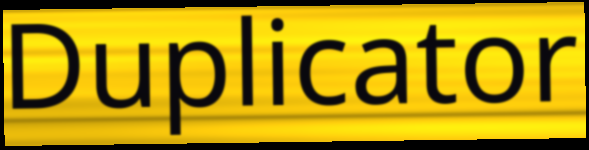
Duplicator